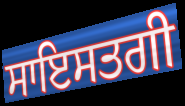
ਸਾਇਸਤਗੀ